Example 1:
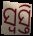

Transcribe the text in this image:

ସ୍ଵସ୍ତି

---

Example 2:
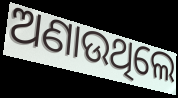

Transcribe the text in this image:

ଅଣାଉଥିଲେ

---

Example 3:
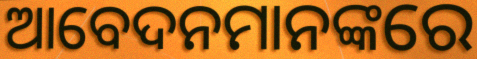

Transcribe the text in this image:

ଆବେଦନମାନଙ୍କରେ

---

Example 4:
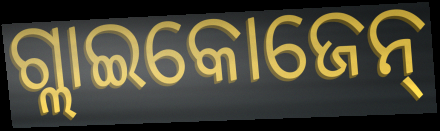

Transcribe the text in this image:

ଗ୍ଲାଇକୋଜେନ୍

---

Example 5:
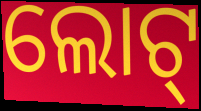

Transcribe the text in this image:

ଲୋଟ୍